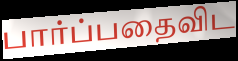
பார்ப்பதைவிட